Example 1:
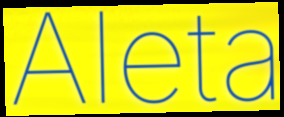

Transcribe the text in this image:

Aleta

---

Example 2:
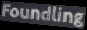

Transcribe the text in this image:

Foundling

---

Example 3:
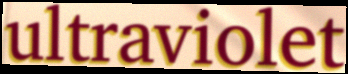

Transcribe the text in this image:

ultraviolet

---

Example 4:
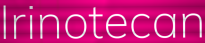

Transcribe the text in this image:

Irinotecan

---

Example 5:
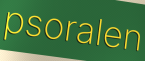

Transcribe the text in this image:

psoralen